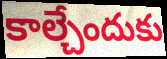
కాల్చేందుకు